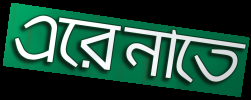
এরেনাতে